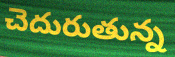
చెదురుతున్న